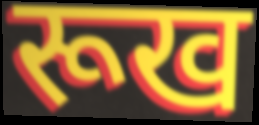
रूख